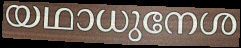
യഥാധുനേശ